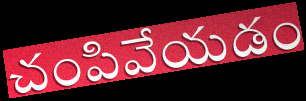
చంపివేయడం